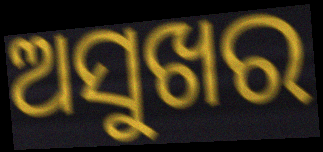
ଅସୁଖର